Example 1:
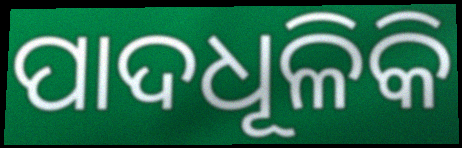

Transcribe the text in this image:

ପାଦଧୂଳିକି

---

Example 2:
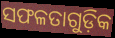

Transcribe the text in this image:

ସଫଳତାଗୁଡ଼ିକ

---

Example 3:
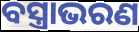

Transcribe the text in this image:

ବସ୍ତ୍ରାଭରଣ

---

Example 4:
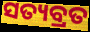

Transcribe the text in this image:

ସତ୍ୟବ୍ରତ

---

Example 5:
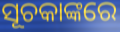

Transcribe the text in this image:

ସୂଚକାଙ୍କରେ